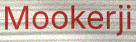
Mookerji